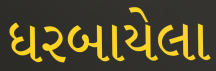
ધરબાયેલા